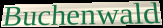
Buchenwald